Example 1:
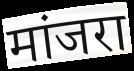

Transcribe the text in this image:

मांजरा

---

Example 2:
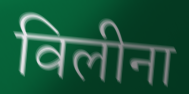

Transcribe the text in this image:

विलीना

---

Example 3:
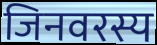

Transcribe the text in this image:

जिनवरस्य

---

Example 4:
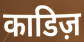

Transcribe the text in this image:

काडिज़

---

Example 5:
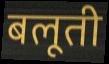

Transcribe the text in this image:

बलूती